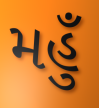
મહુઁ